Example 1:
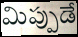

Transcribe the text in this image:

మిప్పుడే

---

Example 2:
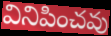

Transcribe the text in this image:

వినిపించవు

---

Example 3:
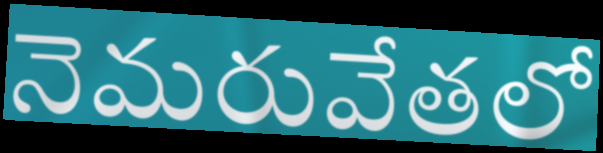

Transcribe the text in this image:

నెమరువేతలో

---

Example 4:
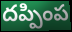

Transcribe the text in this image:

దప్పింప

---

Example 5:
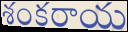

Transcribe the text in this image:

శంకరాయ